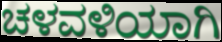
ಚಳವಳಿಯಾಗಿ